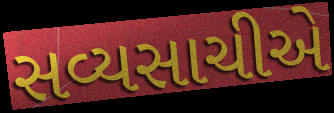
સવ્યસાચીએ